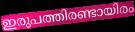
ഇരുപത്തിരണ്ടായിരം